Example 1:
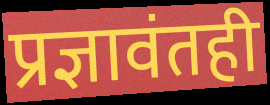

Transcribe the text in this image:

प्रज्ञावंतही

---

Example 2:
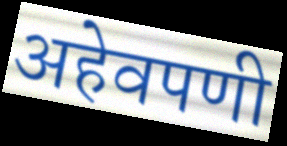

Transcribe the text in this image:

अहेवपणी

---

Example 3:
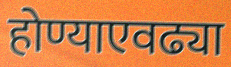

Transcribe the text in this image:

होण्याएवढ्या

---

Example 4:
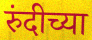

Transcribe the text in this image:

रुंदीच्या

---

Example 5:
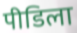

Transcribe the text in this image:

पीडिला